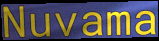
Nuvama